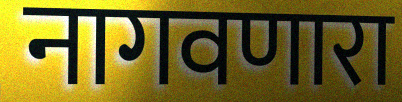
नागवणारा